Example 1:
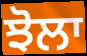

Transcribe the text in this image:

ਝੋਲਾ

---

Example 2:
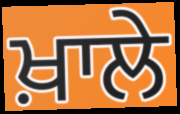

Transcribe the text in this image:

ਖ਼ਾਲੇ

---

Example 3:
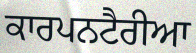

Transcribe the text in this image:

ਕਾਰਪਨਟੈਰੀਆ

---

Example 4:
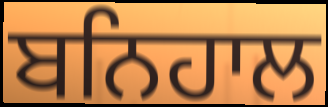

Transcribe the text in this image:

ਬਨਿਹਾਲ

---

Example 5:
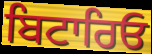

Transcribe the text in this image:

ਬਿਟਾਰਿਓ